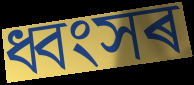
ধ্বংসৰ